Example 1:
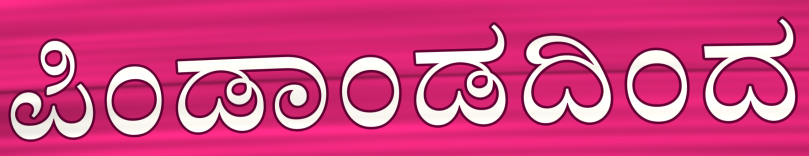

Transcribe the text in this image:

ಪಿಂಡಾಂಡದಿಂದ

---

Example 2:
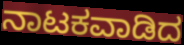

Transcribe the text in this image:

ನಾಟಕವಾಡಿದ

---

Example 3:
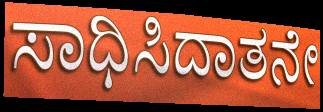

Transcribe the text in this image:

ಸಾಧಿಸಿದಾತನೇ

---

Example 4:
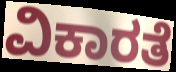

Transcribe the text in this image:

ವಿಕಾರತೆ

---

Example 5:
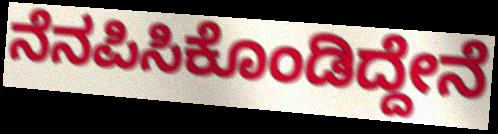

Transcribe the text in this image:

ನೆನಪಿಸಿಕೊಂಡಿದ್ದೇನೆ